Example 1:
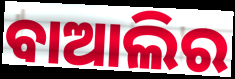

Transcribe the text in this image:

ବାଆଲିର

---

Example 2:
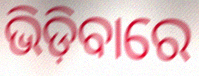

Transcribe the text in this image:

ଭିଡ଼ିବାରେ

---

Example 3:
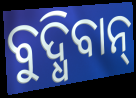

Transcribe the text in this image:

ବୁଦ୍ଧିବାନ୍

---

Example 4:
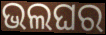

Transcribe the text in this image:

ଭଲଘର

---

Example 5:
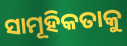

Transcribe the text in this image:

ସାମୂହିକତାକୁ